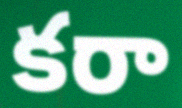
కరా